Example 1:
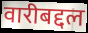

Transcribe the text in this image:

वारीबद्दल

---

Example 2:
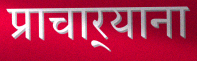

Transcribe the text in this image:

प्राचार्याना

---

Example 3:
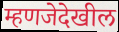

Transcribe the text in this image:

म्हणजेदेखील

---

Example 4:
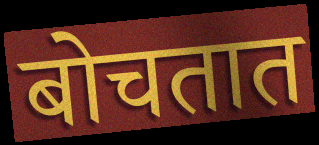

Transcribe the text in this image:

बोचतात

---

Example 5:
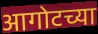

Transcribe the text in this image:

आगोटच्या